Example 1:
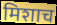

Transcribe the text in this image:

मिशाच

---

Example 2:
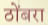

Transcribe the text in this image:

ठोंबरा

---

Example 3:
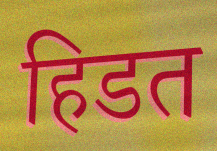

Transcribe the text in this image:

हिडत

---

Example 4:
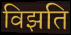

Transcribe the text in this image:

विझति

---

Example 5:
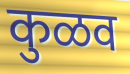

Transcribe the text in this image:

कुळव